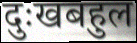
दुःखबहुल